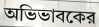
অভিভাবকের